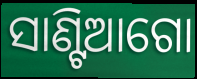
ସାଣ୍ଟିଆଗୋ